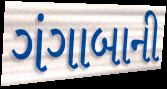
ગંગાબાની